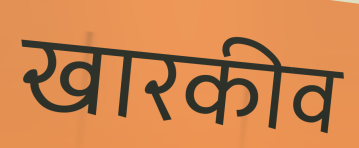
खारकीव